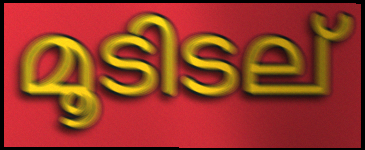
മൂടിടല്